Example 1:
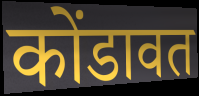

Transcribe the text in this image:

कोंडावत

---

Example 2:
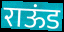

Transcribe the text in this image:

राऊंड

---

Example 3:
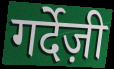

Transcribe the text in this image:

गर्देज़ी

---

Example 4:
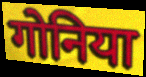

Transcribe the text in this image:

गोनिया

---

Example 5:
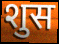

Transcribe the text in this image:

शुस